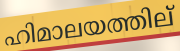
ഹിമാലയത്തില്